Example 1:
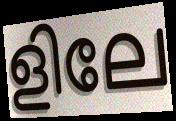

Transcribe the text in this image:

ളിലേ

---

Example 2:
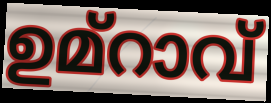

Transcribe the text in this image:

ഉമ്റാവ്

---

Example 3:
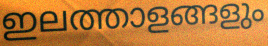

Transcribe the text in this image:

ഇലത്താളങ്ങളും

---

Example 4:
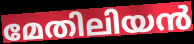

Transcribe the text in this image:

മേതിലിയൻ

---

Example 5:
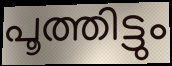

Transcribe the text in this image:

പൂത്തിട്ടും